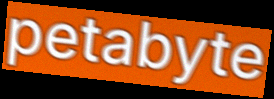
petabyte